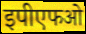
इपीएफओ